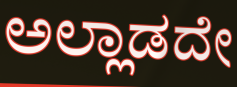
ಅಲ್ಲಾಡದೇ